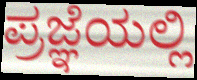
ಪ್ರಜ್ಞೆಯಲ್ಲಿ